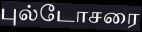
புல்டோசரை